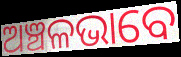
ଅଞ୍ଚଳଭାବେ